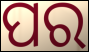
ପର